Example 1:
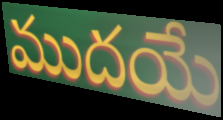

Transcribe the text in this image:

ముదయే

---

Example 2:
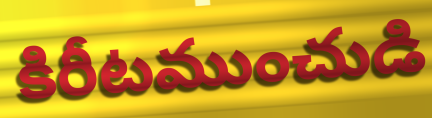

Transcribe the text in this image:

కిరీటముంచుడి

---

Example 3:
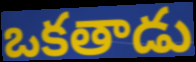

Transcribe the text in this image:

ఒకతాడు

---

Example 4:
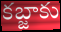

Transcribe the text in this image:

కబ్జాకు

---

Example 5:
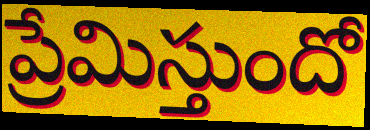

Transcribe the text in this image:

ప్రేమిస్తుందో